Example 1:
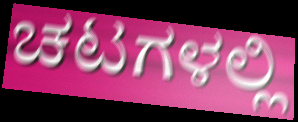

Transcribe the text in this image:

ಚಟಗಳಲ್ಲಿ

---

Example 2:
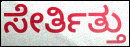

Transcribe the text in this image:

ಸೇರ್ತಿತ್ತು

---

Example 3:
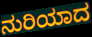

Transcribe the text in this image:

ನುರಿಯಾದ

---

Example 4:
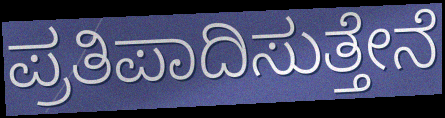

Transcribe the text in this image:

ಪ್ರತಿಪಾದಿಸುತ್ತೇನೆ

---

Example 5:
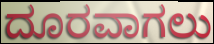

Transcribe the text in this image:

ದೂರವಾಗಲು